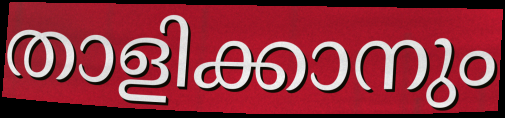
താളിക്കാനും